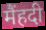
मैंहदी